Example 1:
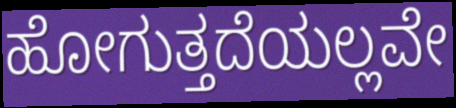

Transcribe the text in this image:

ಹೋಗುತ್ತದೆಯಲ್ಲವೇ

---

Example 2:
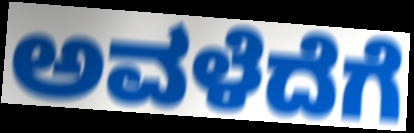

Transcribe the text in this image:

ಅವಳೆದೆಗೆ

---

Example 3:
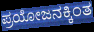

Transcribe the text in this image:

ಪ್ರಯೋಜನಕ್ಕಿಂತ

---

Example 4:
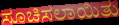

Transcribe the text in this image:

ಸೂಚಿಸಲಾಯಿತು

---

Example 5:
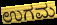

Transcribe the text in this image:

ಉಗಮ